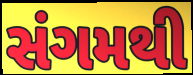
સંગમથી